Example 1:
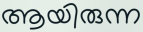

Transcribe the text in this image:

ആയിരുന്ന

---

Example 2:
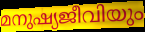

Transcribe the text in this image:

മനുഷ്യജീവിയും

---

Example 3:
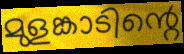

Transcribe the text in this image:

മുളങ്കാടിന്റെ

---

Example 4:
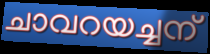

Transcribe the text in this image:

ചാവറയച്ചന്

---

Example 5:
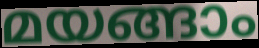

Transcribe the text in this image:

മയങ്ങാം